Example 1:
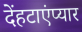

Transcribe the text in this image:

देंहटाएंप्यार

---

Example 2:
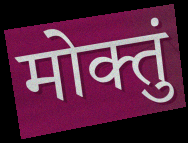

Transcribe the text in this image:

मोक्तुं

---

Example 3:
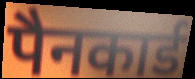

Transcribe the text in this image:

पैनकार्ड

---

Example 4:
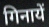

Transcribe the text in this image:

गिनायें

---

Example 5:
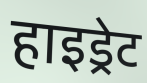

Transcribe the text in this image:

हाइड्रेट